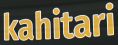
kahitari